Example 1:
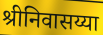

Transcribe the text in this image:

श्रीनिवासय्या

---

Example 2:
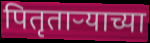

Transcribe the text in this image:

पितृताऱ्याच्या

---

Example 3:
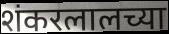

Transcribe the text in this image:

शंकरलालच्या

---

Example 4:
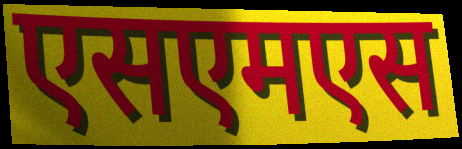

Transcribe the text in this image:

एसएमएस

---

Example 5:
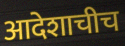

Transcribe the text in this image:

आदेशाचीच